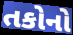
તકોનો